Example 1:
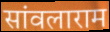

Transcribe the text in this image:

सांवलाराम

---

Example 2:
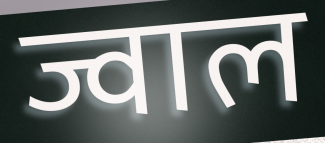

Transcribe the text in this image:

ज्वाल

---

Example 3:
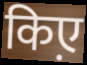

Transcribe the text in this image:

किए़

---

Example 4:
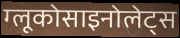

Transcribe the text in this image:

ग्लूकोसाइनोलेट्स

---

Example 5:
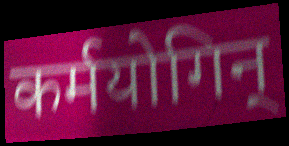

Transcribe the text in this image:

कर्मयोगिन्